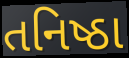
તનિષ્ઠા